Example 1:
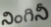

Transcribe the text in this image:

నింగినీ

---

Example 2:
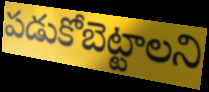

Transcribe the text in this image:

పడుకోబెట్టాలని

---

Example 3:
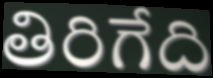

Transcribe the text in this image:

తిరిగేది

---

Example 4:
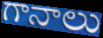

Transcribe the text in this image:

గానాలు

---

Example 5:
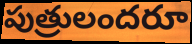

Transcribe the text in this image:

పుత్రులందరూ